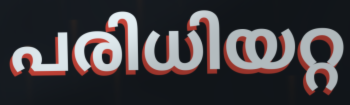
പരിധിയറ്റ